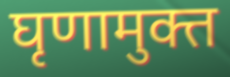
घृणामुक्त